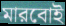
মারবোই